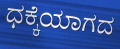
ಧಕ್ಕೆಯಾಗದ